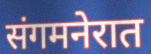
संगमनेरात